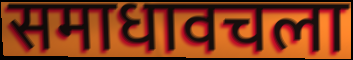
समाधावचला